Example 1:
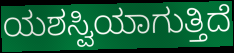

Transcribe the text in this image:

ಯಶಸ್ವಿಯಾಗುತ್ತಿದೆ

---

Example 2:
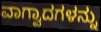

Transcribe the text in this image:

ವಾಗ್ವಾದಗಳನ್ನು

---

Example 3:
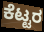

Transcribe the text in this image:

ಕೆಟ್ಟರ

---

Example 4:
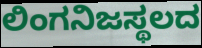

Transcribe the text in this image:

ಲಿಂಗನಿಜಸ್ಥಲದ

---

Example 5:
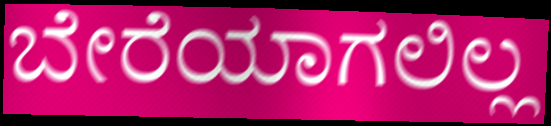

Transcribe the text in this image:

ಬೇರೆಯಾಗಲಿಲ್ಲ